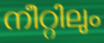
നീറ്റിലും